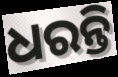
ଧରନ୍ତି